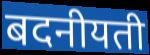
बदनीयती